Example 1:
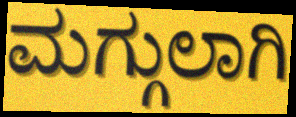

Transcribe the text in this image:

ಮಗ್ಗುಲಾಗಿ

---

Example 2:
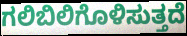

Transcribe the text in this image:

ಗಲಿಬಿಲಿಗೊಳಿಸುತ್ತದೆ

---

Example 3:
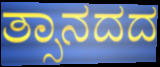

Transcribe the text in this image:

ತ್ಸಾನದದ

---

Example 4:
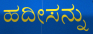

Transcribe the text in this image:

ಹದೀಸನ್ನು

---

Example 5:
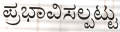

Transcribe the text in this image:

ಪ್ರಭಾವಿಸಲ್ಪಟ್ಟು